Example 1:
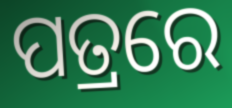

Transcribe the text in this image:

ପତ୍ରରେ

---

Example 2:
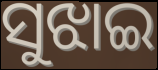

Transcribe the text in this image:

ସୁଝାଇ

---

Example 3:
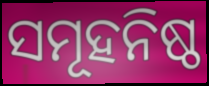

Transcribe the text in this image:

ସମୂହନିଷ୍ଠ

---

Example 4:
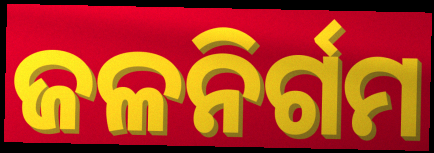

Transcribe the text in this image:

ଜଳନିର୍ଗମ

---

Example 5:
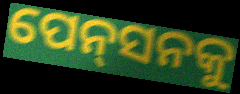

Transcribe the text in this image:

ପେନ୍‌ସନକୁ